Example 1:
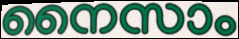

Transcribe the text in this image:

നൈസാം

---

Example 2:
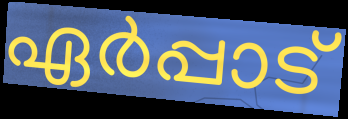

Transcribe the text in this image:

ഏർപ്പാട്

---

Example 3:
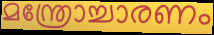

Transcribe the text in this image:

മന്ത്രോച്ചാരണം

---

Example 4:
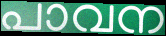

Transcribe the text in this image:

പാവന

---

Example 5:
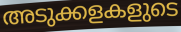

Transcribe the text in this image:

അടുക്കളകളുടെ